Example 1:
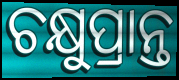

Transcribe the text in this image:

ଚକ୍ଷୁପ୍ରାନ୍ତ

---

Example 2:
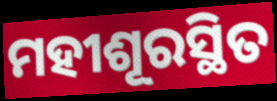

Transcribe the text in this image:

ମହୀଶୂରସ୍ଥିତ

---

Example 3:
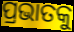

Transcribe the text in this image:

ପ୍ରଭାତକୁ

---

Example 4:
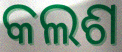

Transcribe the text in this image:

କଲଶ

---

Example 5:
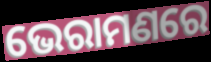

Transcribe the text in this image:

ଭେରାମଣରେ